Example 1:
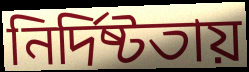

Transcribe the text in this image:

নির্দিষ্টতায়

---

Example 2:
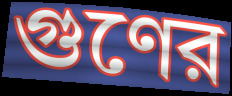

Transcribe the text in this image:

গুণের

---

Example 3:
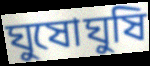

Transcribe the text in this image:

ঘুষোঘুষি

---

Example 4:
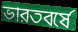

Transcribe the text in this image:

ভারতবর্ষে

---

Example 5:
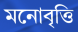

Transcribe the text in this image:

মনোবৃত্তি